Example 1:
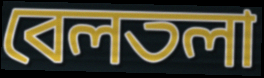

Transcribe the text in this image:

বেলতলা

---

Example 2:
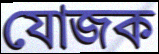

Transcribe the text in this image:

যোজক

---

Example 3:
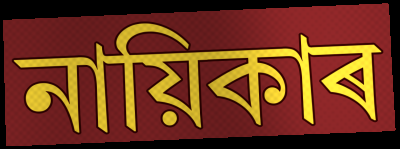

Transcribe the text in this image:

নায়িকাৰ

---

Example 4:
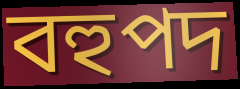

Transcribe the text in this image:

বহুপদ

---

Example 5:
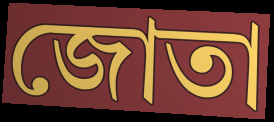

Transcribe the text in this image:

জোতা